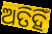
ଅତିହିଁ